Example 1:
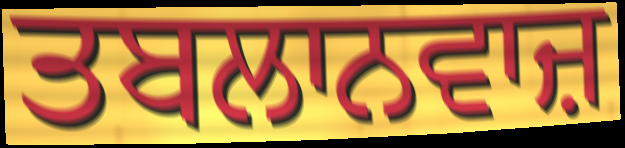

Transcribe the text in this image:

ਤਬਲਾਨਵਾਜ਼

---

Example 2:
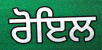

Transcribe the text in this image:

ਰੋਇਲ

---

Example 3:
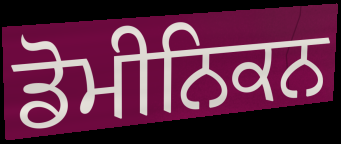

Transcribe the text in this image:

ਡੋਮੀਨਿਕਨ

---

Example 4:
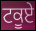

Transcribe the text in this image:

ਟਕੂਏ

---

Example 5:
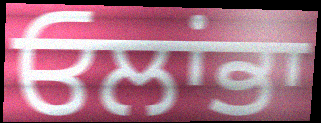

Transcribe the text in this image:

ਓਲਾਂਭਾ